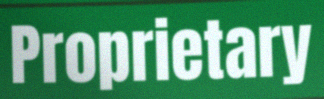
Proprietary